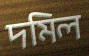
দমিল